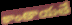
కాంతాయతే